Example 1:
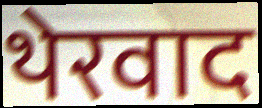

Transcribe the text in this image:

थेरवाद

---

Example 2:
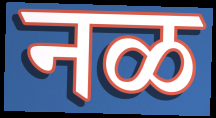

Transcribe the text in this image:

नळ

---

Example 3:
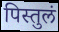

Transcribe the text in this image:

पिस्तुलं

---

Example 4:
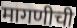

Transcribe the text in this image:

मागणीची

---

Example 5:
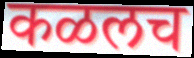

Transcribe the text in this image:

कळलच